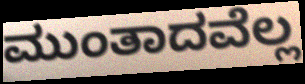
ಮುಂತಾದವೆಲ್ಲ